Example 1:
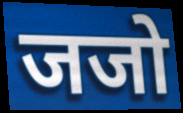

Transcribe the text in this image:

जजो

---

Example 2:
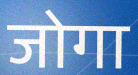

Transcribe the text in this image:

जोगा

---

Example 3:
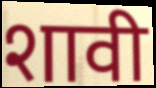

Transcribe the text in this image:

शावी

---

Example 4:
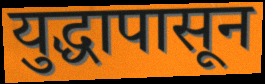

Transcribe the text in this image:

युद्धापासून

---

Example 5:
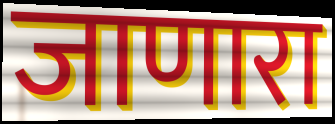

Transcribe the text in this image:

जाणारा